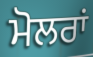
ਮੋਲਰਾਂ